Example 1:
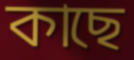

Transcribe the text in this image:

কাছে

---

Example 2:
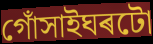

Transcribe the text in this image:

গোঁসাইঘৰটো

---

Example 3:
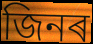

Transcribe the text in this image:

জিনৰ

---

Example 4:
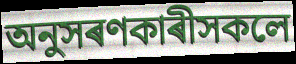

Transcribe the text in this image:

অনুসৰণকাৰীসকলে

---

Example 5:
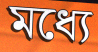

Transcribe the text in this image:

মধ্যে